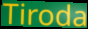
Tiroda